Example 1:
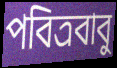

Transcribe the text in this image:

পবিত্রবাবু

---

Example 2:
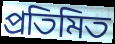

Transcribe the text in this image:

প্রতিমিত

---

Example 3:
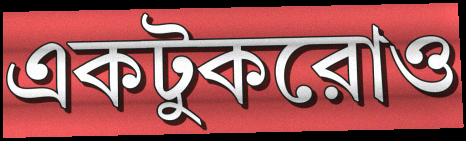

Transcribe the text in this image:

একটুকরোও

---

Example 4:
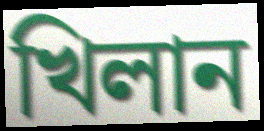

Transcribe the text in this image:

খিলান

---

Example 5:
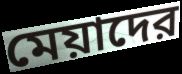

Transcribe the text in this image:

মেয়াদের